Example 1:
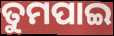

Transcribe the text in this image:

ତୁମପାଇ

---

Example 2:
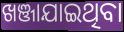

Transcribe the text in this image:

ଖଞ୍ଜାଯାଇଥିବା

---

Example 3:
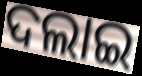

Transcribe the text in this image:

ଦଲାଇ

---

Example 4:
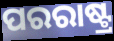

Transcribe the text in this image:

ପରରାଷ୍ଟ୍ର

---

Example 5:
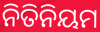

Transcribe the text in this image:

ନିତିନିୟମ